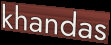
khandas